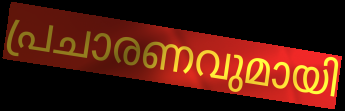
പ്രചാരണവുമായി